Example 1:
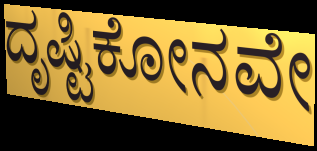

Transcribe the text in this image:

ದೃಷ್ಟಿಕೋನವೇ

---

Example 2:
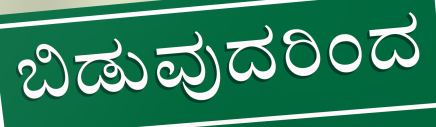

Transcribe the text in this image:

ಬಿಡುವುದರಿಂದ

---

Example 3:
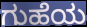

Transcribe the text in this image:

ಗುಹೆಯ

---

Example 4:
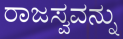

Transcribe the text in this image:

ರಾಜಸ್ವವನ್ನು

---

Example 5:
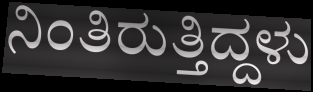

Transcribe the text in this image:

ನಿಂತಿರುತ್ತಿದ್ದಳು